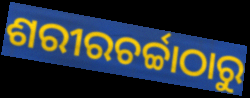
ଶରୀରଚର୍ଚ୍ଚାଠାରୁ